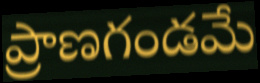
ప్రాణగండమే